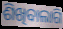
ଶିଖିବାଲାଗି